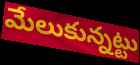
మేలుకున్నట్టు